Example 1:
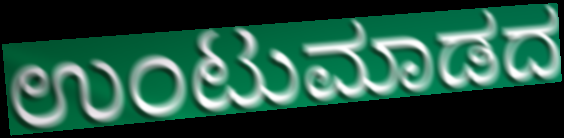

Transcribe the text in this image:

ಉಂಟುಮಾಡದ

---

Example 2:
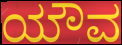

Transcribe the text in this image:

ಯೌವ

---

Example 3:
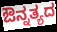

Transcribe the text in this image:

ಔನ್ನತ್ಯದ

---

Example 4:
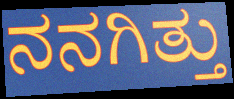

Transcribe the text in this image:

ನನಗಿತ್ತು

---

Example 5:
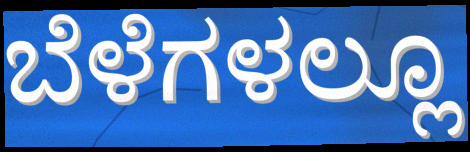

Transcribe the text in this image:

ಬೆಳೆಗಳಲ್ಲೂ